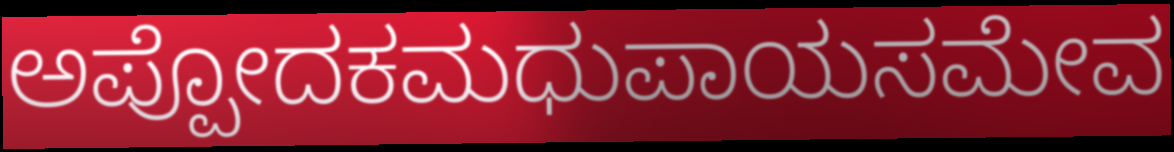
ಅಪ್ಪೋದಕಮಧುಪಾಯಸಮೇವ